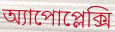
অ্যাপোপ্লেক্সি